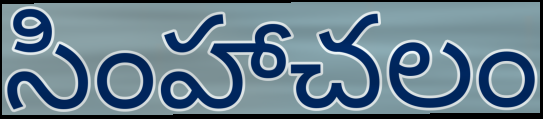
సింహాచలం